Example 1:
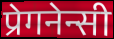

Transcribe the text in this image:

प्रेगनेन्सी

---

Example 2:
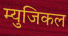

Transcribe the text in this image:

म्युजिकल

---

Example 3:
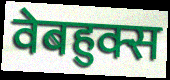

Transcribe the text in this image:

वेबहुक्स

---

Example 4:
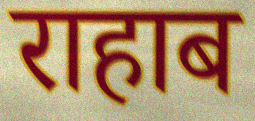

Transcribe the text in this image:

राहाब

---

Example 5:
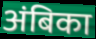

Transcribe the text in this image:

अंबिका